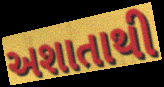
અશાતાથી